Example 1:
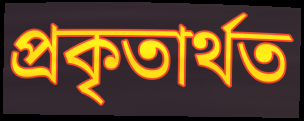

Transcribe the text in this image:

প্ৰকৃতাৰ্থত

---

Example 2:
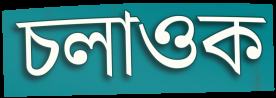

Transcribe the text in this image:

চলাওক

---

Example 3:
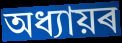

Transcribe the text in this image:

অধ্যায়ৰ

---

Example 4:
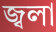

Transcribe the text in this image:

জ্বলা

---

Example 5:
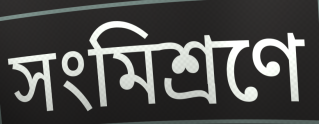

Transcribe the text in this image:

সংমিশ্ৰণে